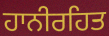
ਹਾਨੀਰਹਿਤ